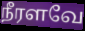
நீரளவே